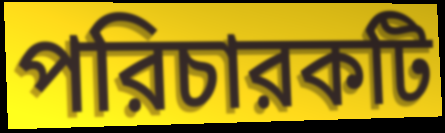
পরিচারকটি